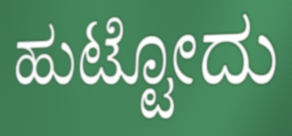
ಹುಟ್ಟೋದು